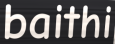
baithi